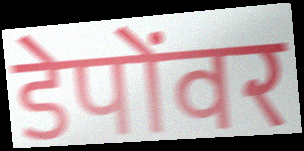
डेपोंवर